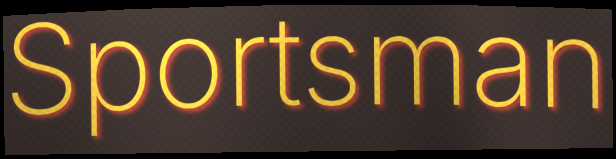
Sportsman